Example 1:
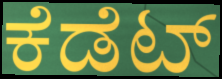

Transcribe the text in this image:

ಕೆಡೆಟ್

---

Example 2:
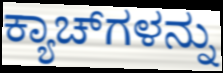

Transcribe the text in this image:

ಕ್ಯಾಚ್‌ಗಳನ್ನು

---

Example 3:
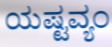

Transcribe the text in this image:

ಯಷ್ಟವ್ಯಂ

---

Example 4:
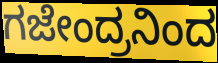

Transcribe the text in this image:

ಗಜೇಂದ್ರನಿಂದ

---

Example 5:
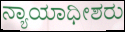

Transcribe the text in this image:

ನ್ಯಾಯಾಧೀಶರು